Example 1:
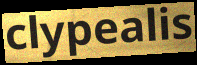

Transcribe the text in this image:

clypealis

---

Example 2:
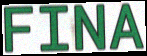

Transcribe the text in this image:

FINA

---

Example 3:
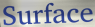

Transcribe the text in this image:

Surface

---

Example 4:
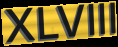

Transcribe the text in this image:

XLVIII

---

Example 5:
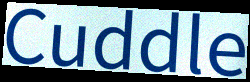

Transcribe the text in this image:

Cuddle